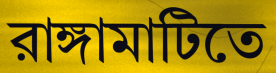
রাঙ্গামাটিতে